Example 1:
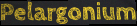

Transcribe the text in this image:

Pelargonium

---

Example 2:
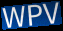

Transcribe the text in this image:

WPV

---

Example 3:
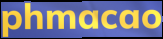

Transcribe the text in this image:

phmacao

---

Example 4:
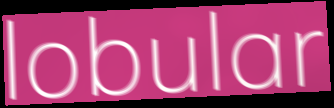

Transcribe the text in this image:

lobular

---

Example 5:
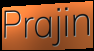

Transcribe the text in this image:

Prajin